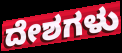
ದೇಶಗಳು